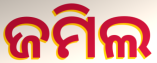
ଜମିଲ